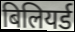
बिलियर्ड